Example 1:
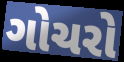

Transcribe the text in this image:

ગોચરો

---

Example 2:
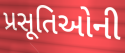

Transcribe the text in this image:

પ્રસૂતિઓની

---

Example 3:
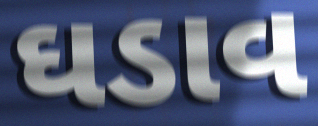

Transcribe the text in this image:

ઘડાવ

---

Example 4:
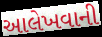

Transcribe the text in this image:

આલેખવાની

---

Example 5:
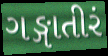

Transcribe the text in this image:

ગઙ્ગાતીરં